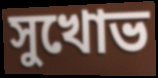
সুখোভ